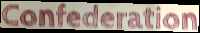
Confederation